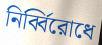
নির্ব্বিরোধে